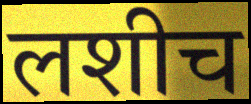
लशीच